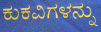
ಕುಕವಿಗಳನ್ನು